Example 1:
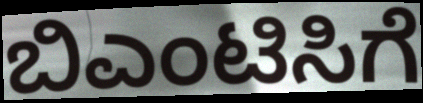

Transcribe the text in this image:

ಬಿಎಂಟಿಸಿಗೆ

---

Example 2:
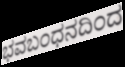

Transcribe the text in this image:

ಭವಬಂಧನದಿಂದ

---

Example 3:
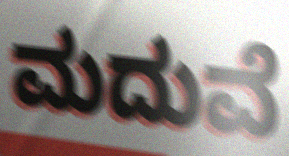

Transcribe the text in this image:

ಮದುವೆ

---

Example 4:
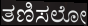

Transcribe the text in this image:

ತಣಿಸಲೋ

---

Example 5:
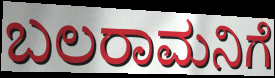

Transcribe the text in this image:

ಬಲರಾಮನಿಗೆ